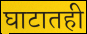
घाटातही